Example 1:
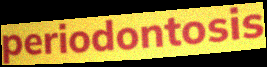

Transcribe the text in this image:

periodontosis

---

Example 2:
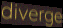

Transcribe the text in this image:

diverge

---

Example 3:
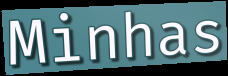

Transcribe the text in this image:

Minhas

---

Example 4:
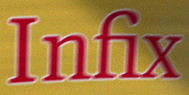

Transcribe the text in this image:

Infix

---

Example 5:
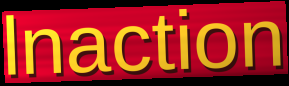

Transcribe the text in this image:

lnaction